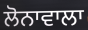
ਲੋਨਾਵਾਲਾ